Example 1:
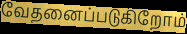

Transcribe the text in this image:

வேதனைப்படுகிறோம்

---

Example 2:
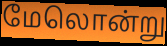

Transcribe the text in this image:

மேலொன்று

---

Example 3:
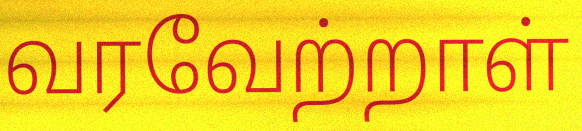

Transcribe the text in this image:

வரவேற்றாள்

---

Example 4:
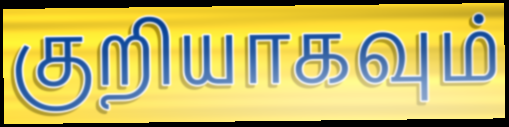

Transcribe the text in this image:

குறியாகவும்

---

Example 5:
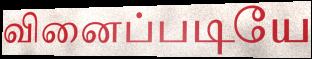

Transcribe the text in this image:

வினைப்படியே